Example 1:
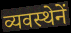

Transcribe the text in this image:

व्यवस्थेनें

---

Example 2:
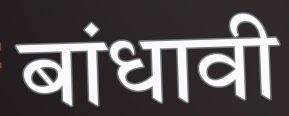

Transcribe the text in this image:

बांधावी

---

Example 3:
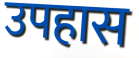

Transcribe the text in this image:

उपहास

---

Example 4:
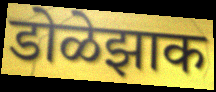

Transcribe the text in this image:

डोळेझाक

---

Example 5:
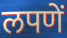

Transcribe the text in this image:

लपणें